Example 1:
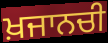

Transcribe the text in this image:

ਖ਼ਜਾਨਚੀ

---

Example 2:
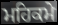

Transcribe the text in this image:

ਮਹਿਕਮੇ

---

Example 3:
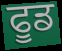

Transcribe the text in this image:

ਫੂਡ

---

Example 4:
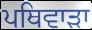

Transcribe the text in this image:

ਪਥਿਵਾੜਾ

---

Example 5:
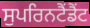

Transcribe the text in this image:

ਸੁਪਰਿਨਟੈਂਡੈਂਟ